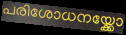
പരിശോധനയ്ക്കോ